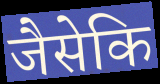
जैसेकि